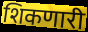
शिकणारी